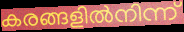
കരങ്ങളിൽനിന്ന്